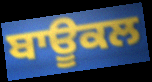
ਬਾਊਕਲ